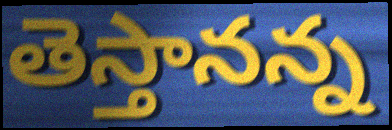
తెస్తానన్న